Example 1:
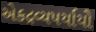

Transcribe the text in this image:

એકદ્રવ્યપર્યાયો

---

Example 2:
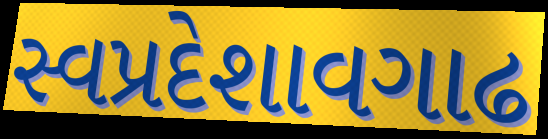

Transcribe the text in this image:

સ્વપ્રદેશાવગાઢ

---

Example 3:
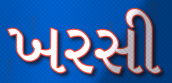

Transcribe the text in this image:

ખરસી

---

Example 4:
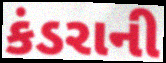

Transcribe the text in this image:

કંડરાની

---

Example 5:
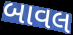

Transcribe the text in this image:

બાવલ